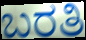
ಬರತಿ